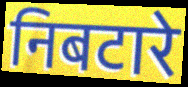
निबटारे